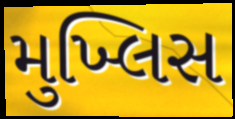
મુખ્લિસ